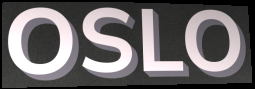
OSLO